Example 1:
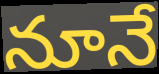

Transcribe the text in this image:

నూనే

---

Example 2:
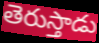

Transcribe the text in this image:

తెరుస్తాడు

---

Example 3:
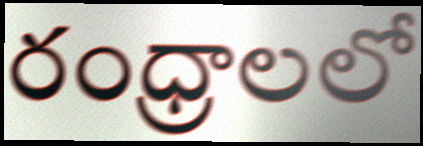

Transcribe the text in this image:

రంధ్రాలలో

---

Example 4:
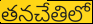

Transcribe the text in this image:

తనచేతిలో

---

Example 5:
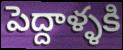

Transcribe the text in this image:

పెద్దాళ్ళకి